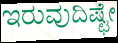
ಇರುವುದಿಷ್ಟೇ